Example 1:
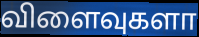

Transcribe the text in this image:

விளைவுகளா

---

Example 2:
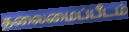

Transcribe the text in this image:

தலைமைப்பீடம்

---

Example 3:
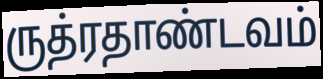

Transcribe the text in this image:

ருத்ரதாண்டவம்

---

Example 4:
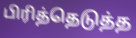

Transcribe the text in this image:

பிரித்தெடுத்த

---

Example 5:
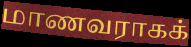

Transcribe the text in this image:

மாணவராகக்